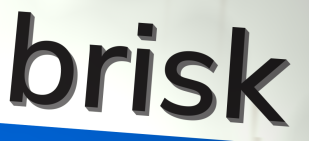
brisk